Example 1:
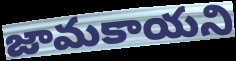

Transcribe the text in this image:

జామకాయని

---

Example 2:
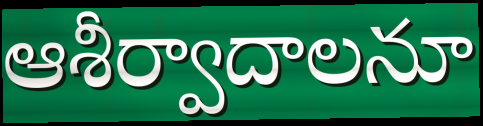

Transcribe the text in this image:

ఆశీర్వాదాలనూ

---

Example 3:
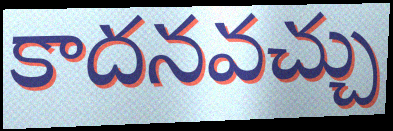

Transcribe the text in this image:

కాదనవచ్చు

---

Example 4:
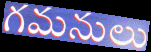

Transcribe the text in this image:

గమనులు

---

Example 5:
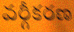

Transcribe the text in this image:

వర్గీకరణ